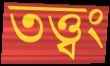
তত্ত্বং